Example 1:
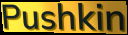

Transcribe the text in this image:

Pushkin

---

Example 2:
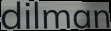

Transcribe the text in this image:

dilman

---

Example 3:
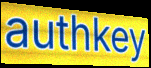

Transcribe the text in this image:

authkey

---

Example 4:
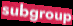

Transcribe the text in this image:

subgroup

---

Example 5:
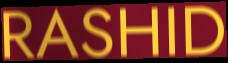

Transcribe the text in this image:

RASHID